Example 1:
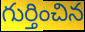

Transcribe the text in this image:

గుర్తించిన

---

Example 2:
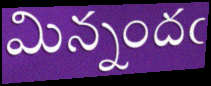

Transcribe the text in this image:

మిన్నందఁ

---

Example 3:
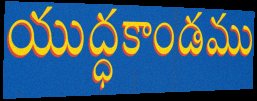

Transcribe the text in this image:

యుద్ధకాండము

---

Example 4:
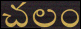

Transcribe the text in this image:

చలం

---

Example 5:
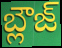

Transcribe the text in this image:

బ్లౌజ్